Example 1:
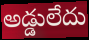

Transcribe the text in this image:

అడ్డులేదు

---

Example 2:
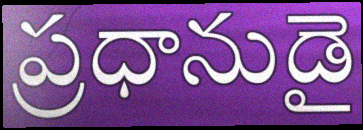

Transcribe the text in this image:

ప్రధానుడై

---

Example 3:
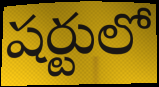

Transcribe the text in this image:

షర్టులో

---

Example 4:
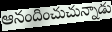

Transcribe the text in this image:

ఆనందించుచున్నాడు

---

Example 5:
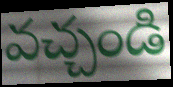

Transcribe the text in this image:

వచ్చండి